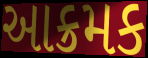
આક્રમક